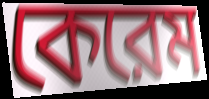
কেরেম